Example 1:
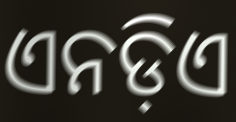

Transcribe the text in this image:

ଏନଡ଼ିଏ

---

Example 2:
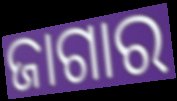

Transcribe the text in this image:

ଜାଗାର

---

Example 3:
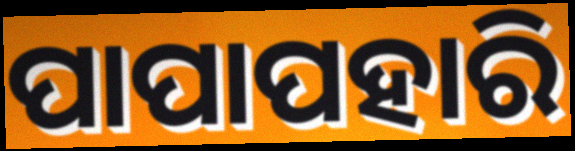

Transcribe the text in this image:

ପାପାପହାରି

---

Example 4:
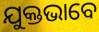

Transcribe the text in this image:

ଯୁକ୍ତଭାବେ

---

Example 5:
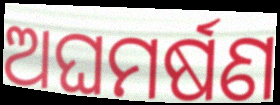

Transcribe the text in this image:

ଅଘମର୍ଷଣ